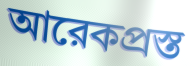
আরেকপ্রস্ত